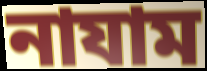
নাযাম